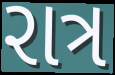
રાત્ર